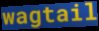
wagtail